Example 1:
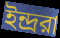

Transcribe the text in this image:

ইন্দ্ররা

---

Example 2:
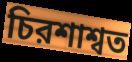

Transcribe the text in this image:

চিরশাশ্বত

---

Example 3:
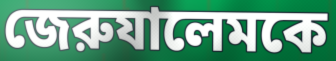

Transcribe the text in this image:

জেরুযালেমকে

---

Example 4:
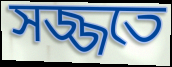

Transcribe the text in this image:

সজ্জতে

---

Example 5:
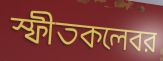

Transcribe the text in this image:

স্ফীতকলেবর